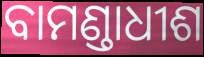
ବାମଣ୍ଡାଧୀଶ